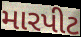
મારપીટ